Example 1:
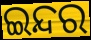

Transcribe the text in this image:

ଇନ୍ଦର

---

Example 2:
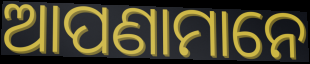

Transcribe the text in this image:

ଆପଣାମାନେ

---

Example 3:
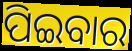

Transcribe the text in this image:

ପିଇବାର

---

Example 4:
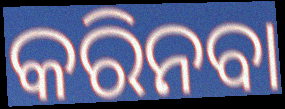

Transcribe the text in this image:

କରିନବା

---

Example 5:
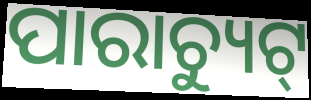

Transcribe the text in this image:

ପାରାଚ୍ୟୁଟ୍